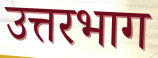
उत्तरभाग